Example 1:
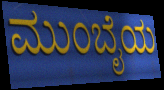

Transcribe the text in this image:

ಮುಂಬೈಯ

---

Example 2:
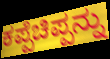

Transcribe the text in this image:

ಕಪ್ಪೆಚಿಪ್ಪನ್ನು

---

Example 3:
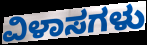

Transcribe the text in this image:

ವಿಳಾಸಗಳು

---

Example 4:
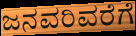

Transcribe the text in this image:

ಜನವರಿವರೆಗೆ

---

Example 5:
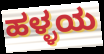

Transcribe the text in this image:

ಹಳ್ಳಯ